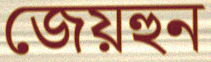
জেয়হুন